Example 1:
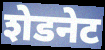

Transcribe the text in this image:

शेडनेट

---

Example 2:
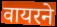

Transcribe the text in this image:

वायरने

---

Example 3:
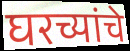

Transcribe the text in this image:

घरच्यांचे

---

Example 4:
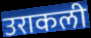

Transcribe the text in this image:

उराकली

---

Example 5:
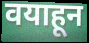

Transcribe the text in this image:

वयाहून